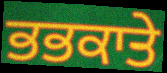
ਭਭਕਾਤੇ